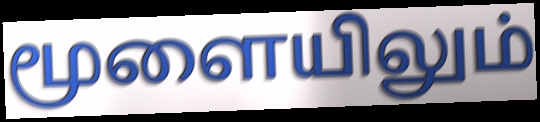
மூளையிலும்